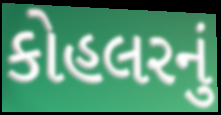
કોહલરનું